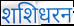
शशिधरन